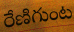
రేణిగుంట